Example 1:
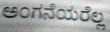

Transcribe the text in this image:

ಅಂಗನೆಯರೆಲ್ಲ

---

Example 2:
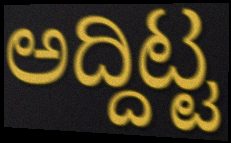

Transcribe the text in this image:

ಅದ್ದಿಟ್ಟ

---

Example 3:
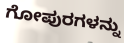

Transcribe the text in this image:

ಗೋಪುರಗಳನ್ನು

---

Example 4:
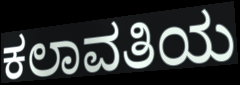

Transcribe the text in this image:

ಕಲಾವತಿಯ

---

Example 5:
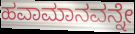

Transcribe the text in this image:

ಹವಾಮಾನವನ್ನೇ